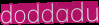
doddadu